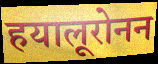
हयालूरोनन